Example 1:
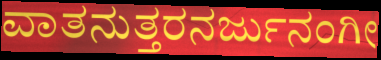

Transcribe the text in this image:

ವಾತನುತ್ತರನರ್ಜುನಂಗೀ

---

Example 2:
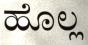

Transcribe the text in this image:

ಹೊಲ್ಲ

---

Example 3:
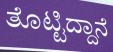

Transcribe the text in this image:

ತೊಟ್ಟಿದ್ದಾನೆ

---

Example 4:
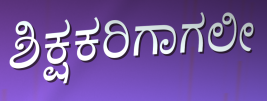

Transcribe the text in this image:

ಶಿಕ್ಷಕರಿಗಾಗಲೀ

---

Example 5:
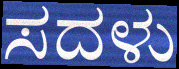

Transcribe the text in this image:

ಸದಳು